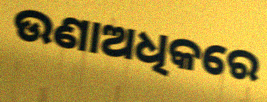
ଉଣାଅଧିକରେ